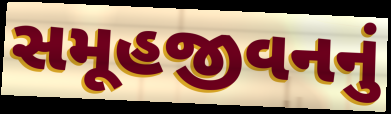
સમૂહજીવનનું